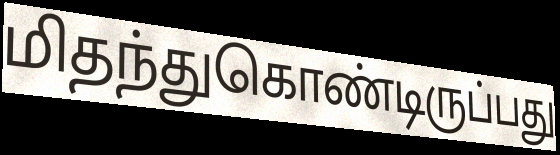
மிதந்துகொண்டிருப்பது